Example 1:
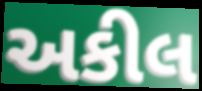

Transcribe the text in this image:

અકીલ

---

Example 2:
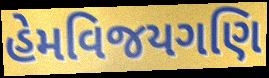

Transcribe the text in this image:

હેમવિજયગણિ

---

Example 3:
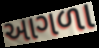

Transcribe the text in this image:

આગળા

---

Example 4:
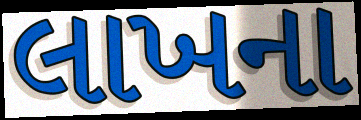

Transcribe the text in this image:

લાખના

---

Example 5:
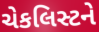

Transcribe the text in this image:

ચેકલિસ્ટને